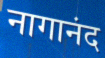
नागानंद